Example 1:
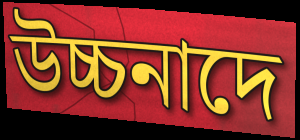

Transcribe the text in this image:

উচ্চনাদে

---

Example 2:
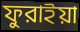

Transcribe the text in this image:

ফুরাইয়া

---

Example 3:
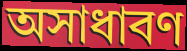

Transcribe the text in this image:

অসাধাবণ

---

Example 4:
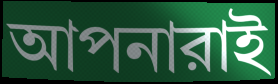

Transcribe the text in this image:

আপনারাই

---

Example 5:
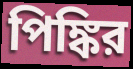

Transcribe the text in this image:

পিঙ্কির